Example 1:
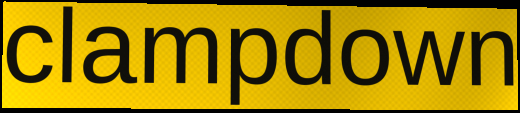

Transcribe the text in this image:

clampdown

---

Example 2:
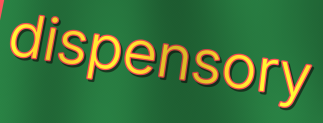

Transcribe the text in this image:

dispensory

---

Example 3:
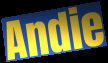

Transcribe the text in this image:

Andie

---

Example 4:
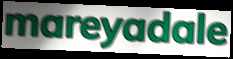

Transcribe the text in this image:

mareyadale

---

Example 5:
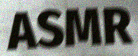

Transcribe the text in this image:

ASMR